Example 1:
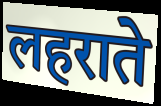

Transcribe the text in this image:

लहराते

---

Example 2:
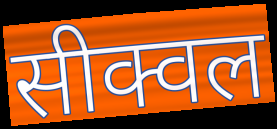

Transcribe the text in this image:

सीक्वल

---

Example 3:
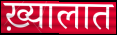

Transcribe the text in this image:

ख़्यालात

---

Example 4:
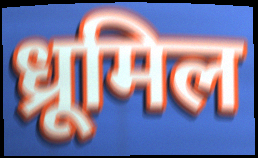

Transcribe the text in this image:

ध्रूमिल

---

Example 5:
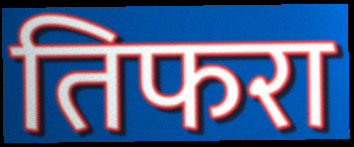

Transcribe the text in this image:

तिफरा